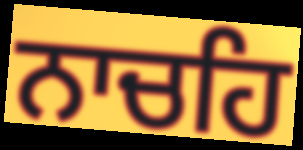
ਨਾਚਹਿ